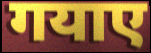
गयाए